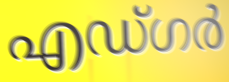
എഡ്ഗർ